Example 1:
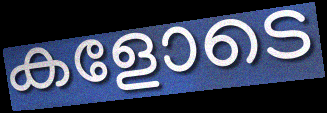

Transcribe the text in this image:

കളോടെ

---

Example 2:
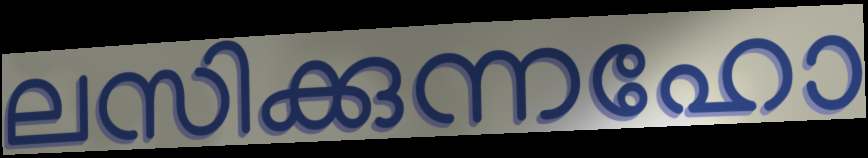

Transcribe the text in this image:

ലസിക്കുന്നഹോ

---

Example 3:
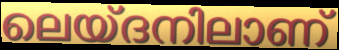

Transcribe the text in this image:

ലെയ്ദനിലാണ്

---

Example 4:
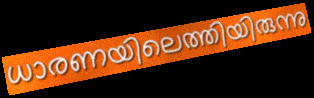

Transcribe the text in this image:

ധാരണയിലെത്തിയിരുന്നു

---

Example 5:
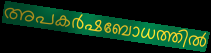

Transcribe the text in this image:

അപകർഷബോധത്തിൽ